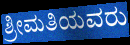
ಶ್ರೀಮತಿಯವರು